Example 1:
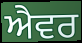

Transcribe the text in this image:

ਐਵਰ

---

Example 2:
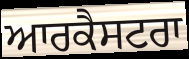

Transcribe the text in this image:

ਆਰਕੈਸਟਰਾ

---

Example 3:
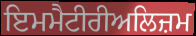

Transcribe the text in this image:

ਇਮਮੈਟੀਰੀਅਲਿਜ਼ਮ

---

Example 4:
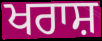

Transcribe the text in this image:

ਖਰਾਸ਼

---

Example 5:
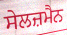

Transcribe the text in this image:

ਸੇਲਜ਼ਮੈਨ